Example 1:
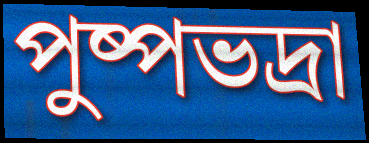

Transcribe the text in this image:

পুষ্পভদ্ৰা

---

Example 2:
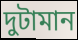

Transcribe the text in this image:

দুটামান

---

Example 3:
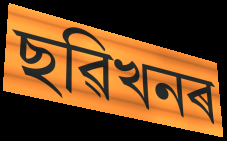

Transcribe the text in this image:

ছৱিখনৰ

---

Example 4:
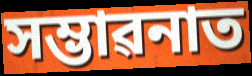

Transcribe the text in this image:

সম্ভাৱনাত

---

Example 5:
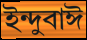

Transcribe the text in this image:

ইন্দুবাঈ